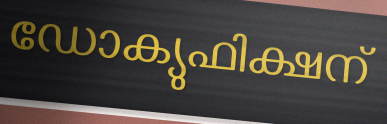
ഡോക്യുഫിക്ഷന്